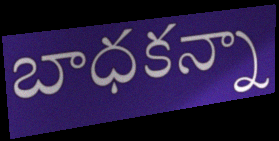
బాధకన్నా